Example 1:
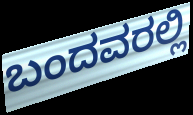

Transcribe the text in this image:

ಬಂದವರಲ್ಲಿ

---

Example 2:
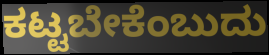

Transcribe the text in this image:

ಕಟ್ಟಬೇಕೆಂಬುದು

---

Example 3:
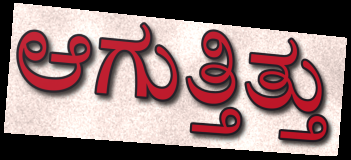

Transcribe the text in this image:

ಆಗುತ್ತಿತ್ತು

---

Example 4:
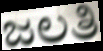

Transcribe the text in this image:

ಜಲತಿ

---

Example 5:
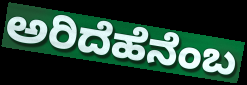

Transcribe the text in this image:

ಅರಿದೆಹೆನೆಂಬ